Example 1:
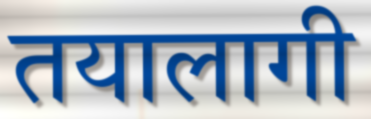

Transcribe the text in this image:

तयालागी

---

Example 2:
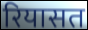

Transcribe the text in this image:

रियासत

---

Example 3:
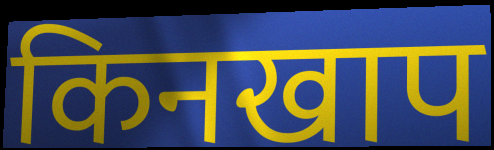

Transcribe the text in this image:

किनखाप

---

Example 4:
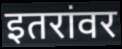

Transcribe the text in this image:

इतरांवर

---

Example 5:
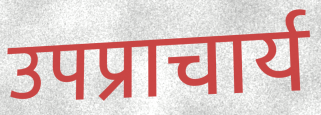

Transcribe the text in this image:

उपप्राचार्य